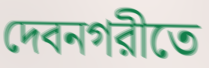
দেবনগরীতে